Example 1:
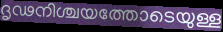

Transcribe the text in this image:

ദൃഢനിശ്ചയത്തോടെയുള്ള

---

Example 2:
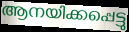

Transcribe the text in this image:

ആനയിക്കപ്പെട്ടു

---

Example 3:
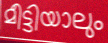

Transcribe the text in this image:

മീട്ടിയാലും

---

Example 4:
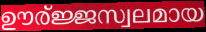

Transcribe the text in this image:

ഊര്ജ്ജസ്വലമായ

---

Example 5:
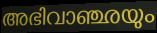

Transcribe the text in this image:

അഭിവാഞ്ഛയും